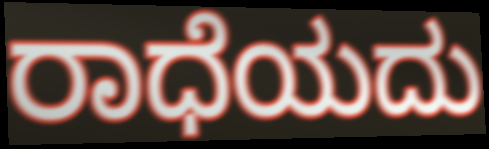
ರಾಧೆಯದು